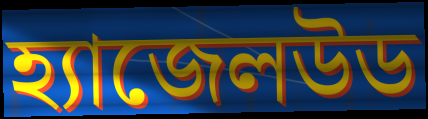
হ্যাজেলউড